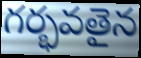
గర్భవతైన